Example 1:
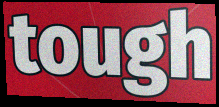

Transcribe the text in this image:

tough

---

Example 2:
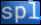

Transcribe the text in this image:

spl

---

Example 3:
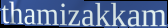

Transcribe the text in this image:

thamizakkam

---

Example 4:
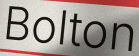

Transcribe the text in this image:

Bolton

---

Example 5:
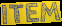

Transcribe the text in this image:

ITEM